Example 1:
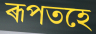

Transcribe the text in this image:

ৰূপতহে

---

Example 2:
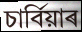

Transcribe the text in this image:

চাৰ্বিয়াৰ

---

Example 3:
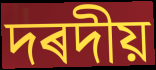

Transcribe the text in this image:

দৰদীয়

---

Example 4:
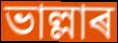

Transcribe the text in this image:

ভাল্লাৰ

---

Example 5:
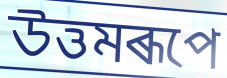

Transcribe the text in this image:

উত্তমৰূপে